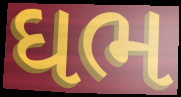
ઘભ